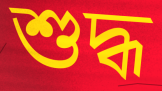
শুদ্ধ